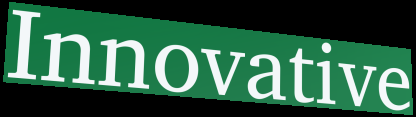
Innovative